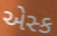
એસ્ક